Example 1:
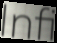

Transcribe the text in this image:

Infi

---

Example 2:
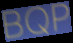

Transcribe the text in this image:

BQP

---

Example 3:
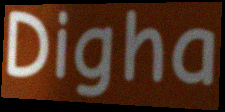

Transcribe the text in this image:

Digha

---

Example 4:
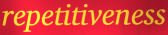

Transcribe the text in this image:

repetitiveness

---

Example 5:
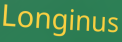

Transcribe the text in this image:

Longinus